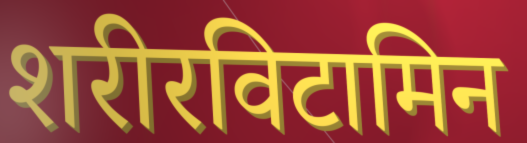
शरीरविटामिन